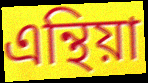
এন্থিয়া